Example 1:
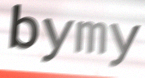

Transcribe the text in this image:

bymy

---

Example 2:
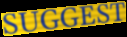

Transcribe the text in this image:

SUGGEST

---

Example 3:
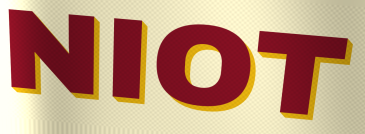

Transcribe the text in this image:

NIOT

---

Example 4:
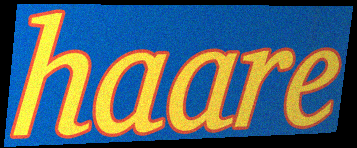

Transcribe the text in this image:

haare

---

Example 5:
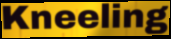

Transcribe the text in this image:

Kneeling